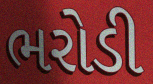
ભરોડી